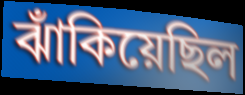
ঝাঁকিয়েছিল